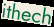
ithech